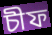
চীফ